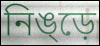
নিঙ্ড়ে